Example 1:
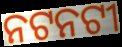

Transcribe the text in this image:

ନଟନଟୀ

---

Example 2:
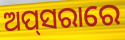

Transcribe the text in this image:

ଅପ୍‌ସରାରେ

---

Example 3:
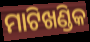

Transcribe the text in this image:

ମାଟିଖଣ୍ଡିକ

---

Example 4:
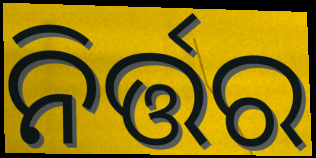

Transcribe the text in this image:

ନିର୍ତ୍ତର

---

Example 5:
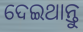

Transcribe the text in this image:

ଦେଇଥାନ୍ତୁ